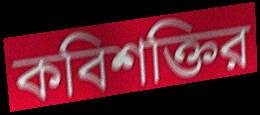
কবিশক্তির